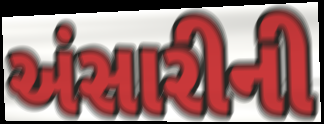
અંસારીની